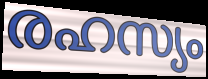
രഹസ്യം